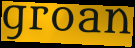
groan